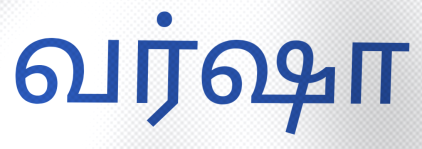
வர்ஷா